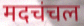
मदचंचल